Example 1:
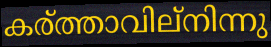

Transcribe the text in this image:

കര്ത്താവില്നിന്നു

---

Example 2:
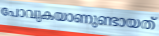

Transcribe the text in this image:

പോവുകയാണുണ്ടായത്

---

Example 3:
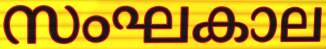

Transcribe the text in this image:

സംഘകാല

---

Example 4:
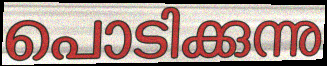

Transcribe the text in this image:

പൊടിക്കുന്നു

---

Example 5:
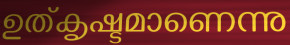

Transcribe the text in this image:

ഉത്കൃഷ്ടമാണെന്നു